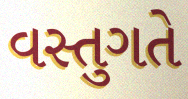
વસ્તુગતે